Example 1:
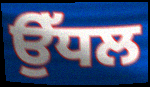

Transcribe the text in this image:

ਉੱਧਲ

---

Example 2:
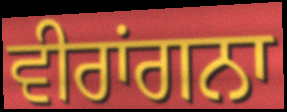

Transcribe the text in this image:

ਵੀਰਾਂਗਨਾ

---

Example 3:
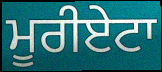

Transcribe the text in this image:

ਮੂਰੀਏਟਾ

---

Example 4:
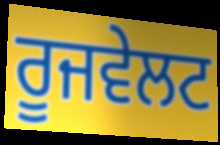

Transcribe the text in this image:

ਰੂਜਵੇਲਟ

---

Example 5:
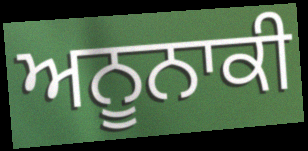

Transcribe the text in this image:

ਅਨੂਨਾਕੀ